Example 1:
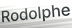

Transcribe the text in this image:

Rodolphe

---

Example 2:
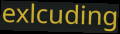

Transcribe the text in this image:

exlcuding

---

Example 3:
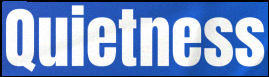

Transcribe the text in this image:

Quietness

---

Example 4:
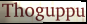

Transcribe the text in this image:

Thoguppu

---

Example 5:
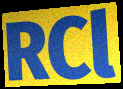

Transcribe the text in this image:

RCl